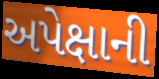
અપેક્ષાની